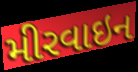
મીરવાઇન